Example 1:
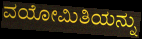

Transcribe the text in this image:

ವಯೋಮಿತಿಯನ್ನು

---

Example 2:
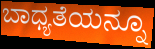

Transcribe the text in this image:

ಬಾಧ್ಯತೆಯನ್ನೂ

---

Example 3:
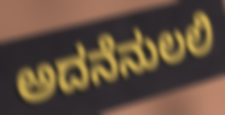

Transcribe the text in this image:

ಅದನೆನುಲಲಿ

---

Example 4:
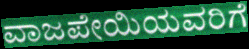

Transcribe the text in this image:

ವಾಜಪೇಯಿಯವರಿಗೆ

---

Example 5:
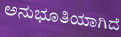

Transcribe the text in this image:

ಅನುಭೂತಿಯಾಗಿದೆ